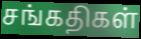
சங்கதிகள்